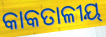
କାକତାଳୀୟ